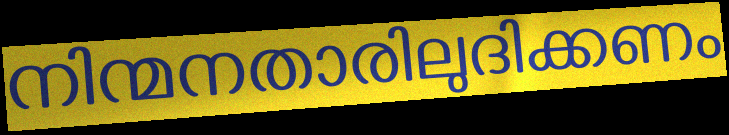
നിന്മനതാരിലുദിക്കണം